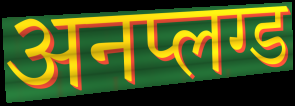
अनप्लग्ड